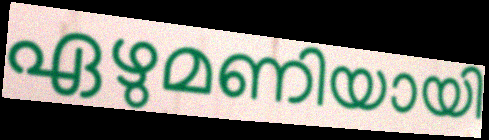
ഏഴുമണിയായി